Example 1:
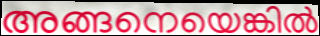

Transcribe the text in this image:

അങ്ങനെയെങ്കിൽ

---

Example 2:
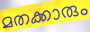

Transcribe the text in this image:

മതക്കാരും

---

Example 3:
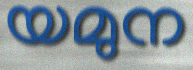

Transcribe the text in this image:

യമുന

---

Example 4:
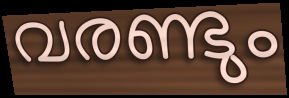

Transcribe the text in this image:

വരണ്ടും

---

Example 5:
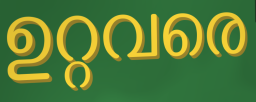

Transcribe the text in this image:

ഉറ്റവരെ